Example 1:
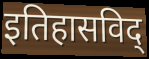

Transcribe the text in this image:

इतिहासविद्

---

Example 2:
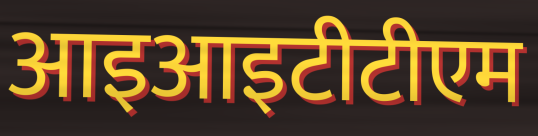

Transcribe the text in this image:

आइआइटीटीएम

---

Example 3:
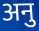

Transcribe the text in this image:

अनु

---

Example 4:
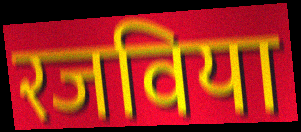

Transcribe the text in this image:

रजविया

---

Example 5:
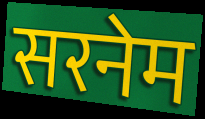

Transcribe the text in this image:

सरनेम